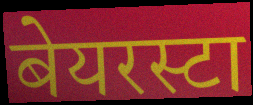
बेयरस्टा